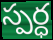
స్పర్ధ